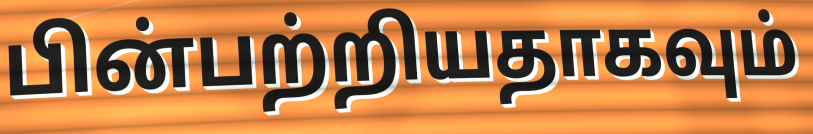
பின்பற்றியதாகவும்